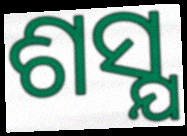
ଶସ୍ଯ